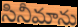
సినీమాను